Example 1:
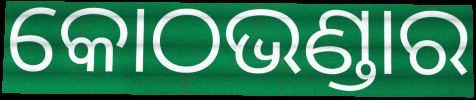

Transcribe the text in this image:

କୋଠଭଣ୍ଡାର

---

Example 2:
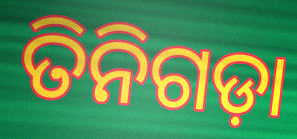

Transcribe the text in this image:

ତିନିଗଡ଼ା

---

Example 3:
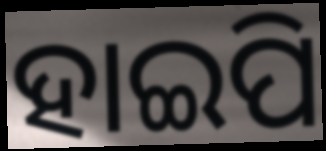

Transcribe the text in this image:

ହାଇପି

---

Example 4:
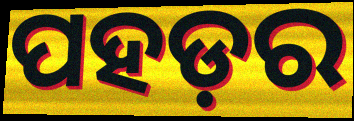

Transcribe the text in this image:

ପହଡ଼ର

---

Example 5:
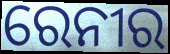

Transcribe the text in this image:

ରେନୀର